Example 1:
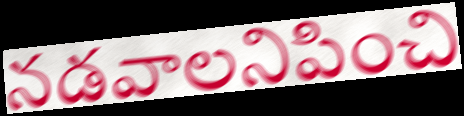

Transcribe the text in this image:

నడవాలనిపించి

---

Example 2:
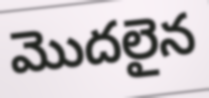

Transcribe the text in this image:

మొదలైన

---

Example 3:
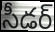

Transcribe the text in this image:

సీడర్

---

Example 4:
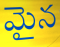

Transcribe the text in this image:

మైన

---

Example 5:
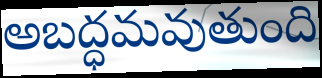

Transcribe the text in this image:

అబద్ధమవుతుంది